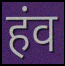
हंव